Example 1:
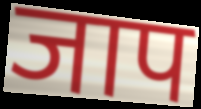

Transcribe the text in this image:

जाप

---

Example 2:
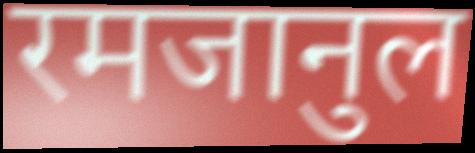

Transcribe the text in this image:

रमजानुल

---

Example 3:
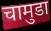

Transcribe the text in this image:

चामुडा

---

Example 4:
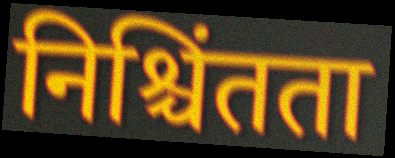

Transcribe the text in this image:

निश्चिंतता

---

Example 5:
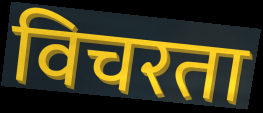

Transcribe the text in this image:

विचरता